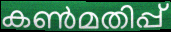
കൺമതിപ്പ്